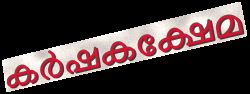
കർഷകക്ഷേമ